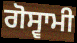
ਗੋਸ੍ਵਾਮੀ